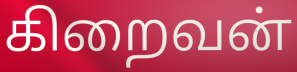
கிறைவன்